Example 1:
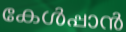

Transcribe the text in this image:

കേൾപ്പാൻ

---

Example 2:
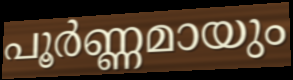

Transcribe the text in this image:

പൂർണ്ണമായും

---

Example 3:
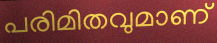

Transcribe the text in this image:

പരിമിതവുമാണ്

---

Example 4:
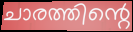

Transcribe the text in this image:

ചാരത്തിന്റെ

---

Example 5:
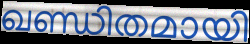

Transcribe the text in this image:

ഖണ്ഡിതമായി